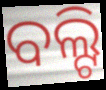
ବଲ୍ଟି